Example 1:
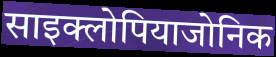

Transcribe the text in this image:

साइक्लोपियाजोनिक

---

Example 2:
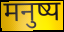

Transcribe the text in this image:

मनुष्य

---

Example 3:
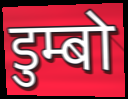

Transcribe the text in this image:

डुम्बो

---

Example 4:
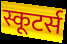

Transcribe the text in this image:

स्कूटर्स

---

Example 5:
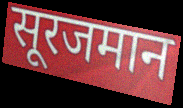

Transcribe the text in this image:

सूरजमान